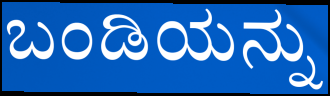
ಬಂಡಿಯನ್ನು